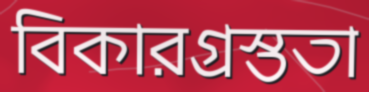
বিকারগ্রস্ততা